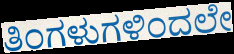
ತಿಂಗಳುಗಳಿಂದಲೇ